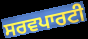
ਸਰਵਪਾਰਟੀ